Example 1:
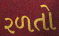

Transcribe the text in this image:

રળતો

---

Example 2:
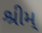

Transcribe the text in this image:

શ્રીમ્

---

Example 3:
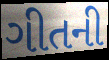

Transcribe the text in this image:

ગીતની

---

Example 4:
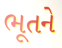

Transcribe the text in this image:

ભૂતને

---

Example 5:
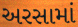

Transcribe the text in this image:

અરસામાં